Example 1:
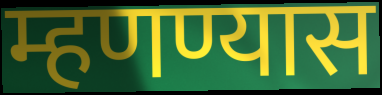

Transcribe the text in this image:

म्हणण्यास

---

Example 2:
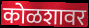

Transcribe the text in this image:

कोळशावर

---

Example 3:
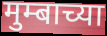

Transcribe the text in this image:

मुम्बाच्या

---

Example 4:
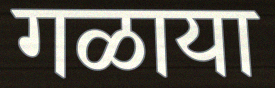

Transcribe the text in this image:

गळाया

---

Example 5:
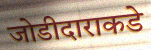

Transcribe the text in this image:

जोडीदाराकडे